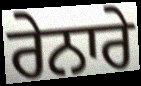
ਰੇਨਾਰੇ